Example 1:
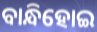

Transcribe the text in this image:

ବାନ୍ଧିହୋଇ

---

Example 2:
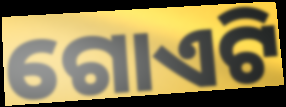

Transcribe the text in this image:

ଗୋଏଟି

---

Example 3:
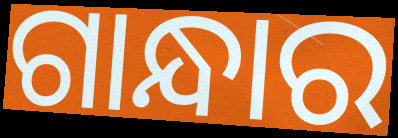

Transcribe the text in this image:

ଗାନ୍ଧାର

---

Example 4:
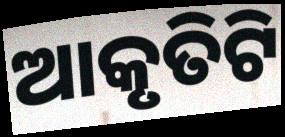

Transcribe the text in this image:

ଆକୃତିଟି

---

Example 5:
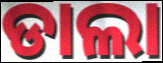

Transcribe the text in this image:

ଡାଲା